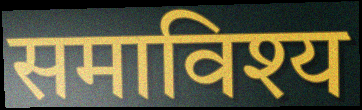
समाविश्य